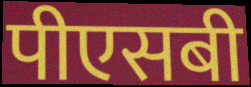
पीएसबी